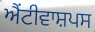
ਐਂਟੀਵਾਸ਼ਪਸ